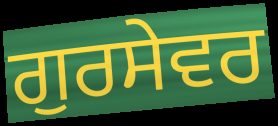
ਗੁਰਸੇਵਰ